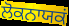
ਲੋਕਨਾਯਕਂ